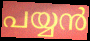
പയ്യൻ